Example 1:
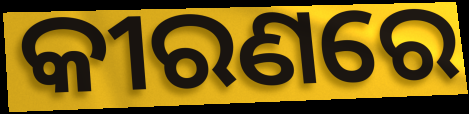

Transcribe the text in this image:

କୀରଣରେ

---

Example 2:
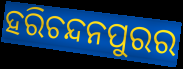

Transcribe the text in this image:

ହରିଚନ୍ଦନପୁରର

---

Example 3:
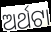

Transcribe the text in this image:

ଅର୍ଥଟା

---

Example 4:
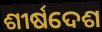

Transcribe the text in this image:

ଶୀର୍ଷଦେଶ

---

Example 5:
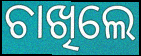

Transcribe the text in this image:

ଚାଖିଲେ